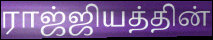
ராஜ்ஜியத்தின்